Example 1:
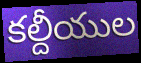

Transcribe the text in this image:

కల్దీయుల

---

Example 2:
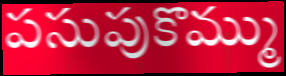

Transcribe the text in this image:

పసుపుకొమ్ము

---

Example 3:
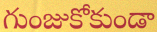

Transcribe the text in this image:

గుంజుకోకుండా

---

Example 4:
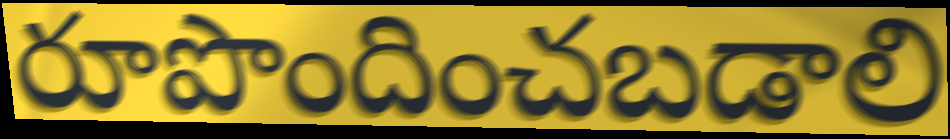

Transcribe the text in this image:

రూపొందించబడాలి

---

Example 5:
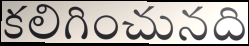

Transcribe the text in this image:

కలిగించునది